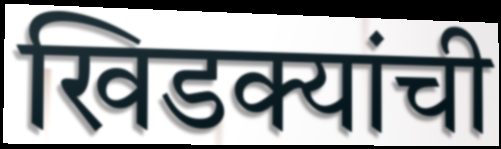
खिडक्यांची